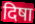
दिषा